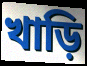
খাড়ি